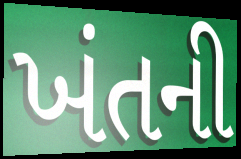
ખંતની